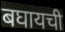
बघायची